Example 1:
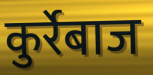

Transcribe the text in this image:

कुर्रेबाज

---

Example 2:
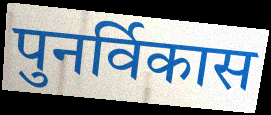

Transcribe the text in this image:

पुनर्विकास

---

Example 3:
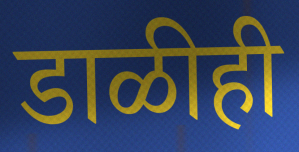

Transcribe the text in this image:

डाळीही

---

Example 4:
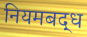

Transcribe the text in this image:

नियमबद्ध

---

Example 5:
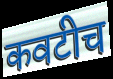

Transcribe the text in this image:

कवटीच